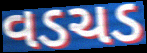
વડચડ